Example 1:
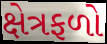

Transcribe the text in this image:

ક્ષેત્રફળો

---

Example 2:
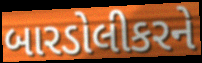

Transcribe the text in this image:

બારડોલીકરને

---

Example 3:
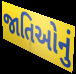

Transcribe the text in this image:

જાતિઓનું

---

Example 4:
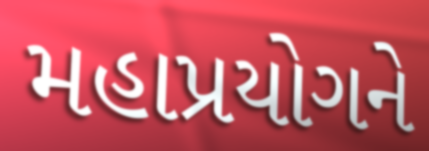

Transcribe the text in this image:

મહાપ્રયોગને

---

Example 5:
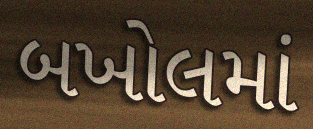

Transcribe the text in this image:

બખોલમાં